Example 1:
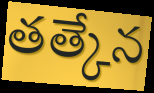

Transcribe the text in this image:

తత్కేన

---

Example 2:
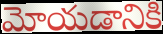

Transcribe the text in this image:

మోయడానికి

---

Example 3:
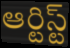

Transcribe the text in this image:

ఆర్టిస్ట్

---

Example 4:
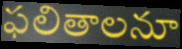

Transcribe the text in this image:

ఫలితాలనూ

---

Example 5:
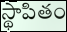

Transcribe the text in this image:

స్థాపితం